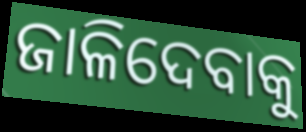
ଜାଳିଦେବାକୁ